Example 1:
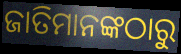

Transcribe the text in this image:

ଜାତିମାନଙ୍କଠାରୁ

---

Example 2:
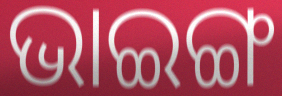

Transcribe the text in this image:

ଭାଇଙ୍ଗ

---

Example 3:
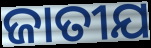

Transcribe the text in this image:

ଜାତୀଯ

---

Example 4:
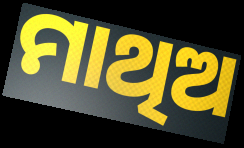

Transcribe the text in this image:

ମାଥିଅ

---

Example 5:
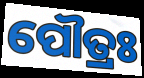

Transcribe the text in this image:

ପୌତ୍ରଃ